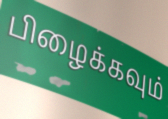
பிழைக்கவும்